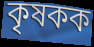
কৃষকক